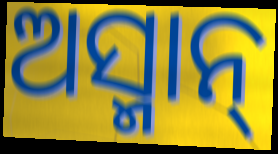
ଅସ୍ମାନ୍